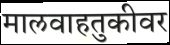
मालवाहतुकीवर